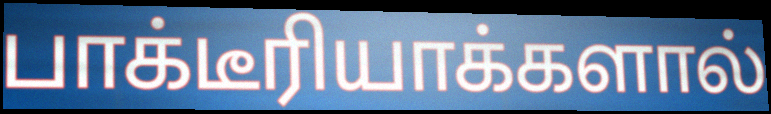
பாக்டீரியாக்களால்